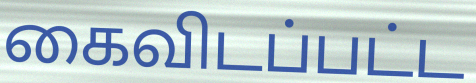
கைவிடப்பட்ட